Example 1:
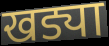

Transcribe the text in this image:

खड्या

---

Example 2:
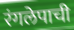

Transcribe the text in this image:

रंगलेपाची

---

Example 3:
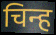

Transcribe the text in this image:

चिन्ह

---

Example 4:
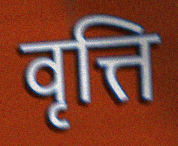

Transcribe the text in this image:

वृत्ति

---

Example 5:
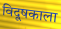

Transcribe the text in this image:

विदूषकाला